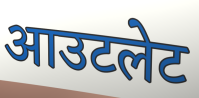
आउटलेट